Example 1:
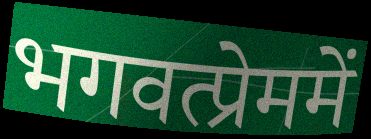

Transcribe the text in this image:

भगवत्प्रेममें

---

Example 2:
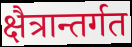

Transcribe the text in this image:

क्षैत्रान्तर्गत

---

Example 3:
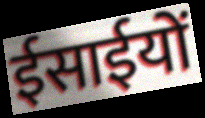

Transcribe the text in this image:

ईसाईयों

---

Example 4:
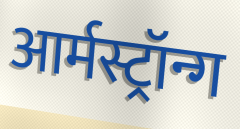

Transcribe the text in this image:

आर्मस्ट्रॉन्ग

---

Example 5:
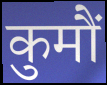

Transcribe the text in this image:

कुमौं